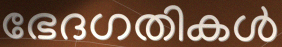
ഭേദഗതികൾ